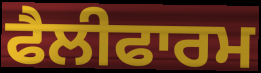
ਫੈਲੀਫਾਰਮ